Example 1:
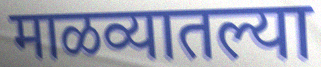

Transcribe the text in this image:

माळव्यातल्या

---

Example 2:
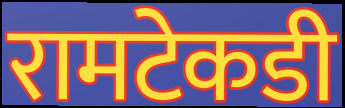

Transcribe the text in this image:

रामटेकडी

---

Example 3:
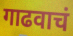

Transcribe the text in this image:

गाढवाचं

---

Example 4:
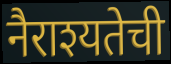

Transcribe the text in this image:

नैराश्यतेची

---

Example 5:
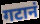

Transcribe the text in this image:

गटानं